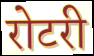
रोटरी